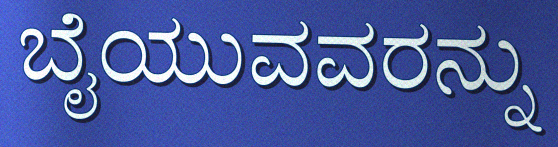
ಬೈಯುವವರನ್ನು